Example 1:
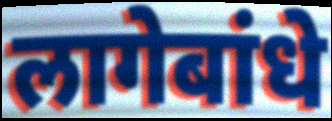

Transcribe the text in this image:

लागेबांधे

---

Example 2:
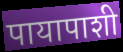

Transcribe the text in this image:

पायापाशी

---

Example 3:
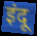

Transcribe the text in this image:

इंदू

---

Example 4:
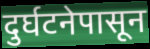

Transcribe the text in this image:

दुर्घटनेपासून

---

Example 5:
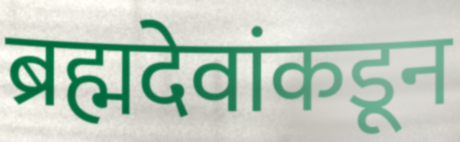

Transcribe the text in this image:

ब्रह्मदेवांकडून